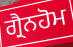
ਗ੍ਰੈਨਹੋਮ